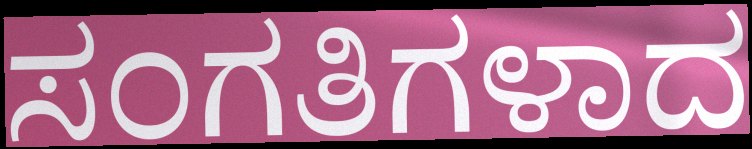
ಸಂಗತಿಗಳಾದ